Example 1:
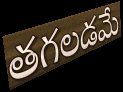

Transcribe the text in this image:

తగలడమే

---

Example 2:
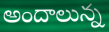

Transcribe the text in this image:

అందాలున్న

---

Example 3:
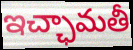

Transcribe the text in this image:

ఇచ్ఛామతీ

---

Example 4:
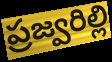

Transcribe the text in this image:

ప్రజ్వరిల్లి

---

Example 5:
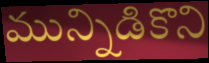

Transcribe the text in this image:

మున్నిడికొని